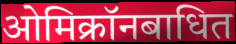
ओमिक्रॉनबाधित